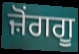
ਜ਼ੋਂਗਗੂ